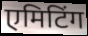
एमिटिंग